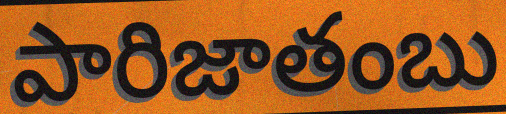
పారిజాతంబు